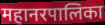
महानरपालिका